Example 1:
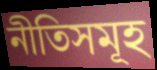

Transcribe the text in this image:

নীতিসমূহ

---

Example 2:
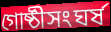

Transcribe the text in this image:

গোষ্ঠীসংঘৰ্ষ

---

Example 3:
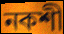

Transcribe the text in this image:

নকশী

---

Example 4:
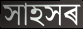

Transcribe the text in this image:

সাহসৰ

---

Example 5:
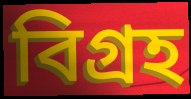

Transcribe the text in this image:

বিগ্ৰহ